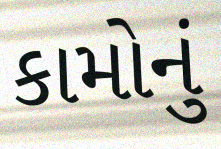
કામોનું